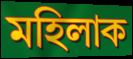
মহিলাক